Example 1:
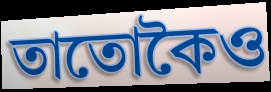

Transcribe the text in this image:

তাতোকৈও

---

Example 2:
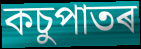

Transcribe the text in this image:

কচুপাতৰ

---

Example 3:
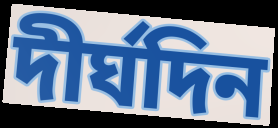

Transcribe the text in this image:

দীৰ্ঘদিন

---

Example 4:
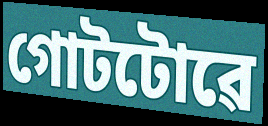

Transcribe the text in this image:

গোটটোৱে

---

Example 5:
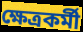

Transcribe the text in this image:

ক্ষেত্ৰকৰ্মী